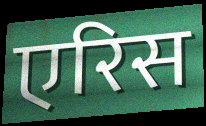
एरिस